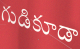
గుడికూడా